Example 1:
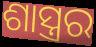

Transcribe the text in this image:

ଶାସ୍ତ୍ରର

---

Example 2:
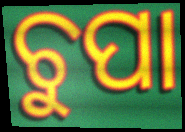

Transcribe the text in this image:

ଚୁପା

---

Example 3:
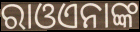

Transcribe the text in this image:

ରାଓଏନାଙ୍କ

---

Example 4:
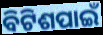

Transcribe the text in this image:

ବିଟିଶପାଇଁ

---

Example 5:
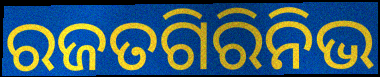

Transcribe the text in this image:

ରଜତଗିରିନିଭ